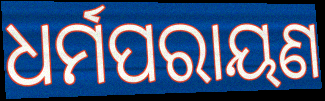
ଧର୍ମପରାୟଣ